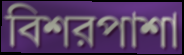
বিশরপাশা